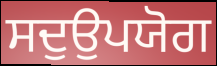
ਸਦੁਉਪਯੋਗ